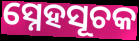
ସ୍ନେହସୂଚକ